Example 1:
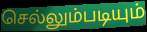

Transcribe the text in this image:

செல்லும்படியும்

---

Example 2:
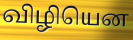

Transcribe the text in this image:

விழியென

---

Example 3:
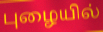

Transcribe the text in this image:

புழையில்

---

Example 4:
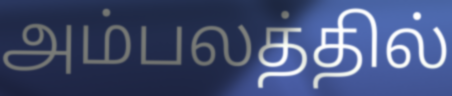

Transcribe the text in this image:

அம்பலத்தில்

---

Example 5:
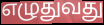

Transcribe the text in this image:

எழுதுவது